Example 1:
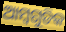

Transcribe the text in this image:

ଆମ୍ବଗୁଡିକ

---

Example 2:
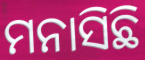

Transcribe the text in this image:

ମନାସିଛି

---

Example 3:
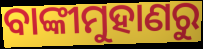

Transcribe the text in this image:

ବାଙ୍କୀମୁହାଣରୁ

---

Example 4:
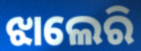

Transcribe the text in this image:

ଝାଲେରି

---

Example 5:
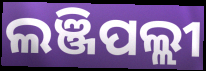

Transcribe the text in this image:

ଲଞ୍ଜିପଲ୍ଲୀ